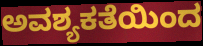
ಅವಶ್ಯಕತೆಯಿಂದ